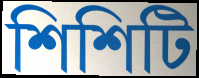
শিশিটি